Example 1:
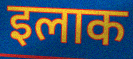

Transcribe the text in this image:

इलाक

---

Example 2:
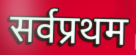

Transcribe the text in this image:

सर्वप्रथम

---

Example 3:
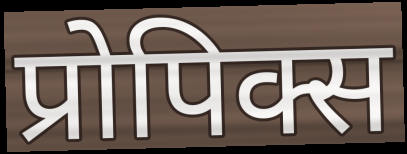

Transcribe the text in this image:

प्रोपिक्स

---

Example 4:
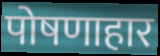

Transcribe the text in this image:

पोषणाहार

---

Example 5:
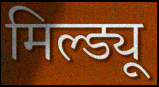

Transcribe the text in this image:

मिल्ड्यू